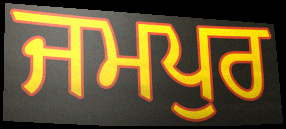
ਜਮਪੁਰ